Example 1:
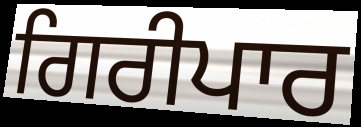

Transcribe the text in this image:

ਗਿਰੀਪਾਰ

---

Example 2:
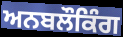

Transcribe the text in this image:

ਅਨਬਲੌਕਿੰਗ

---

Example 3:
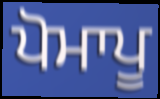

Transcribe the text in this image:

ਪੋਮਾਪੂ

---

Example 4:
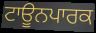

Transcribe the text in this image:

ਟਾਊਨਪਾਰਕ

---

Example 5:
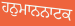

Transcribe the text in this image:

ਹਨੁਮਾਨਨਾਟਕ